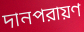
দানপরায়ণ